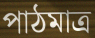
পাঠমাত্র